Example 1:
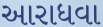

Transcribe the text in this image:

આરાધવા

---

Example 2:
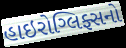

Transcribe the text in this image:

હાઇરોગ્લિફ્સનો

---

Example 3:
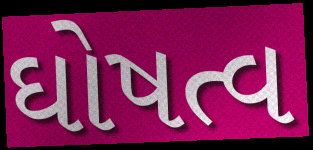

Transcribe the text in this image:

ઘોષત્વ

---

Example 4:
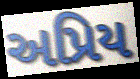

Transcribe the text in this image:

અપ્રિય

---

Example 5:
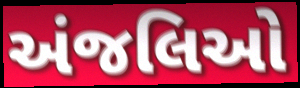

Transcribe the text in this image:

અંજલિઓ